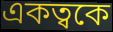
একত্বকে